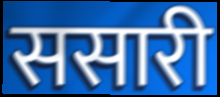
ससारी